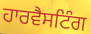
ਹਾਰਵੈਸਟਿੰਗ